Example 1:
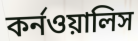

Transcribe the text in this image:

কর্নওয়ালিস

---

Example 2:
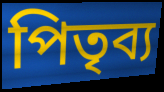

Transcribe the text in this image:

পিতৃব্য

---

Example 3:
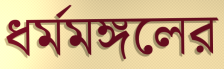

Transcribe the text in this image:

ধর্মমঙ্গলের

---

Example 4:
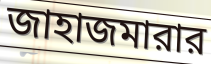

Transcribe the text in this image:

জাহাজমারার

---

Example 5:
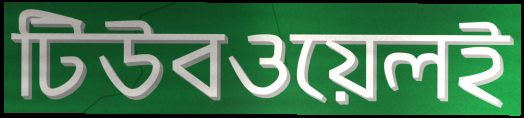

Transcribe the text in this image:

টিউবওয়েলই